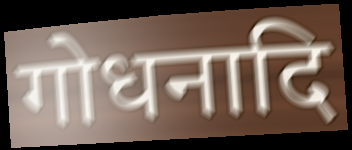
गोधनादि